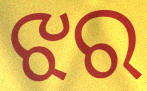
ଝର